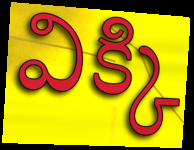
విక్కి